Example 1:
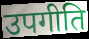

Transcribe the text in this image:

उपगीति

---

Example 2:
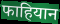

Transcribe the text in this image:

फाहियान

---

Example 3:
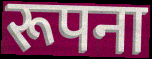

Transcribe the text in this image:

रूपना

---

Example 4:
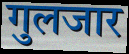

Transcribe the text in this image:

गुलजार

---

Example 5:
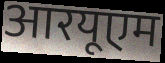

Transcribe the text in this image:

आरयूएम